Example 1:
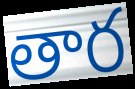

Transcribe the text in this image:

తార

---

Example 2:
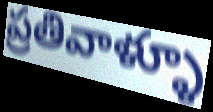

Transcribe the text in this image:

ప్రతివాళ్ళూ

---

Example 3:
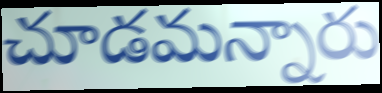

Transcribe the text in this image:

చూడమన్నారు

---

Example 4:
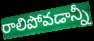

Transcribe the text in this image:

రాలిపోవడాన్నీ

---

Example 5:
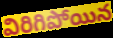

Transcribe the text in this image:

విరిగిపోయిన